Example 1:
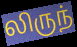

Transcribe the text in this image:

லிருந்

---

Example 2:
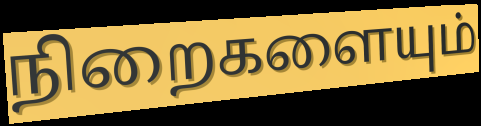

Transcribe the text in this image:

நிறைகளையும்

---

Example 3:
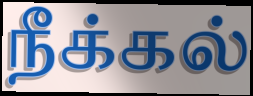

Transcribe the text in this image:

நீக்கல்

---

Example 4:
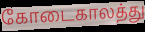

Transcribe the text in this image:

கோடைகாலத்து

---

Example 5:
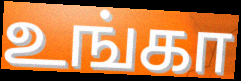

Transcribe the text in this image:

உங்கா